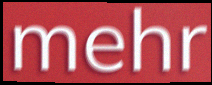
mehr